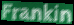
Frankin